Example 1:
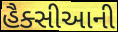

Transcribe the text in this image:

હૈક્સીઆની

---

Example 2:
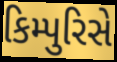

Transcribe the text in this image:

કિમ્પુરિસે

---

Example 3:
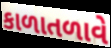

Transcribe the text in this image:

કાળાતળાવે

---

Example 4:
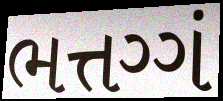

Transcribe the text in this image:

ભત્તગ્ગં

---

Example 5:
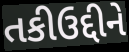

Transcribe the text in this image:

તકીઉદ્દીને